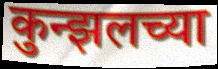
कुन्झलच्या